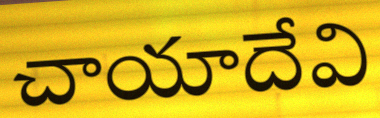
చాయాదేవి